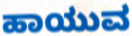
ಹಾಯುವ